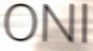
ONI